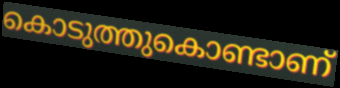
കൊടുത്തുകൊണ്ടാണ്